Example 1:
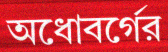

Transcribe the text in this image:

অধোবর্গের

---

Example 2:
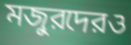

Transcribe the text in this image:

মজুরদেরও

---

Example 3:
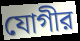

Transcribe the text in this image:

যোগীর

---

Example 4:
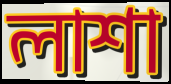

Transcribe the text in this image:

লাশা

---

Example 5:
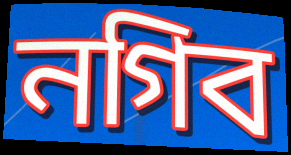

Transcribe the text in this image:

নগিব